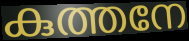
കുത്തനേ